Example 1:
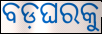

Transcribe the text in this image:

ବଡ଼ଘରକୁ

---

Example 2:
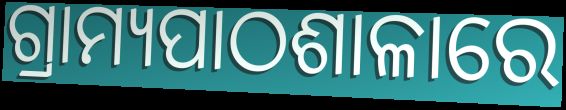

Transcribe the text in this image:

ଗ୍ରାମ୍ୟପାଠଶାଳାରେ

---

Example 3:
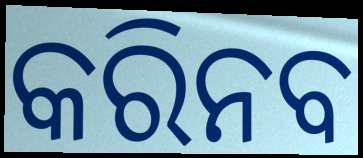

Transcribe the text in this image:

କରିନବ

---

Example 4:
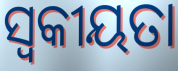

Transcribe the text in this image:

ସ୍ଵକୀୟତା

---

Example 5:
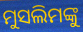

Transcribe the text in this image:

ମୁସଲିମଙ୍କୁ